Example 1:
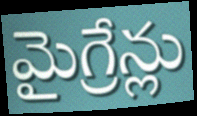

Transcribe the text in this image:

మైగ్రేన్లు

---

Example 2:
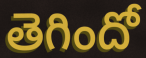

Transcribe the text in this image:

తెగిందో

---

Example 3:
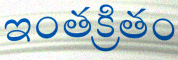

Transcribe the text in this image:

ఇంతక్రితం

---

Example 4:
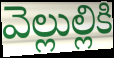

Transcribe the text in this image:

వెల్లుల్లికి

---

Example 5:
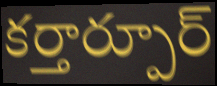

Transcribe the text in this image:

కర్తార్పూర్